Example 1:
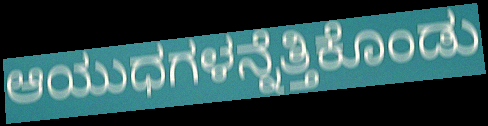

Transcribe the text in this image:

ಆಯುಧಗಳನ್ನೆತ್ತಿಕೊಂಡು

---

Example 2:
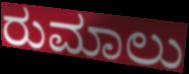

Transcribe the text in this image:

ರುಮಾಲು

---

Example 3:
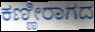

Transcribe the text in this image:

ಕಣ್ಣೀರಾಗದ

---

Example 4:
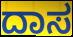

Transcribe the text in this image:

ದಾಸ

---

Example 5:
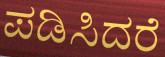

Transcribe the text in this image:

ಪಡಿಸಿದರೆ